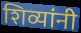
शिव्यांनी